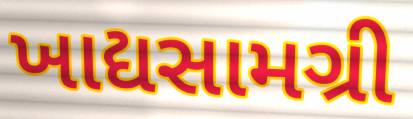
ખાદ્યસામગ્રી